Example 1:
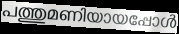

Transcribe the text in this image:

പത്തുമണിയായപ്പോൾ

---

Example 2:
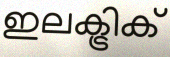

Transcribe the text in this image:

ഇലക്ട്രിക്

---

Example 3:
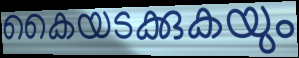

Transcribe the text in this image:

കൈയടക്കുകയും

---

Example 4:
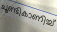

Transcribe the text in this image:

ചൂണ്ടികാണിച്ച്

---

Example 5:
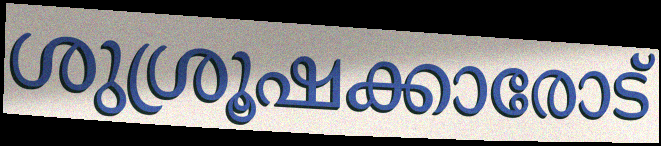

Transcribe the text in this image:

ശുശ്രൂഷക്കാരോട്